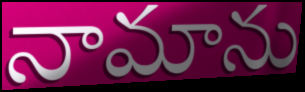
నామాను